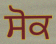
ਸੋਕ